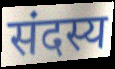
संदस्य